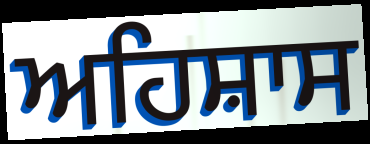
ਅਹਿਸ਼ਾਸ